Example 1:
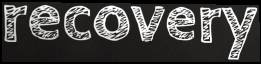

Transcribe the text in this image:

recovery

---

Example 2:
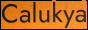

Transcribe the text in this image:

Calukya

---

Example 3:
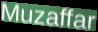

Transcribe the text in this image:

Muzaffar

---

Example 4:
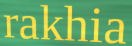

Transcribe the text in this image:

rakhia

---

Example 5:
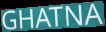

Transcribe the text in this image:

GHATNA